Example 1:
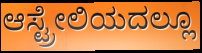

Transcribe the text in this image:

ಆಸ್ಟ್ರೇಲಿಯದಲ್ಲೂ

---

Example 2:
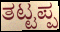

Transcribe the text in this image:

ತಟ್ಟಪ್ಪ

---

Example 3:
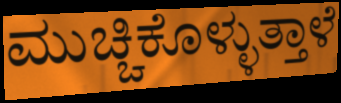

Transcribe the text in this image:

ಮುಚ್ಚಿಕೊಳ್ಳುತ್ತಾಳೆ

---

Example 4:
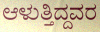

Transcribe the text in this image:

ಆಳುತ್ತಿದ್ದವರ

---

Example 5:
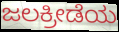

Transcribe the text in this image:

ಜಲಕ್ರೀಡೆಯ